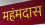
महंमदास